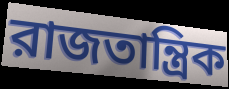
রাজতান্ত্রিক